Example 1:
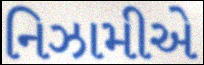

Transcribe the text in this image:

નિઝામીએ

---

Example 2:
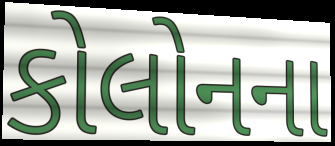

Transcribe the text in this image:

કોલોનના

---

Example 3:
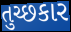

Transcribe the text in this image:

તુચ્છકાર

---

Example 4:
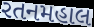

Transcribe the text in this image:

રતનમહાલ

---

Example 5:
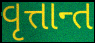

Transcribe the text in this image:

વૃત્તાન્ત